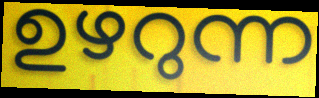
ഉഴറുന്ന